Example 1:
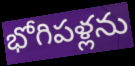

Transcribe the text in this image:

భోగిపళ్లను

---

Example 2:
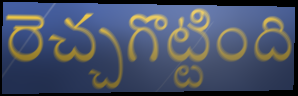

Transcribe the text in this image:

రెచ్చగొట్టింది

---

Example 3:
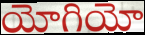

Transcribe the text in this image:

యోగియో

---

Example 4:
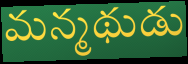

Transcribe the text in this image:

మన్మథుడు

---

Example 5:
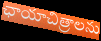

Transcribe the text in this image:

ఛాయాచిత్రాలను